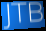
JTB